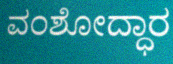
ವಂಶೋದ್ಧಾರ